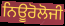
ਨਿਊਰੋਲੋਜੀ